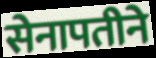
सेनापतीने